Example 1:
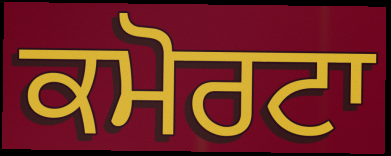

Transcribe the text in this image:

ਕਮੋਰਟਾ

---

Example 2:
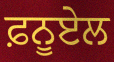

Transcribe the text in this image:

ਫ਼ਨੂਏਲ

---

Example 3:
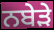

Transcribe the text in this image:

ਨਬੇੜੇ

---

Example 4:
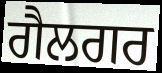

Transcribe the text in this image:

ਗੈਲਗਰ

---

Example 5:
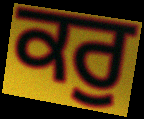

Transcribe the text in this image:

ਕਰੁ